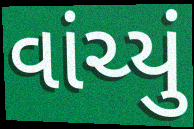
વાંચ્યું